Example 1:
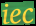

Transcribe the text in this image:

iec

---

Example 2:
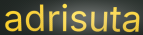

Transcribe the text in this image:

adrisuta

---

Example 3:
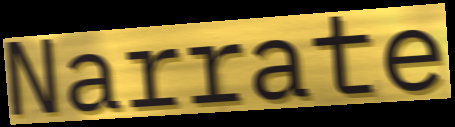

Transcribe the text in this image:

Narrate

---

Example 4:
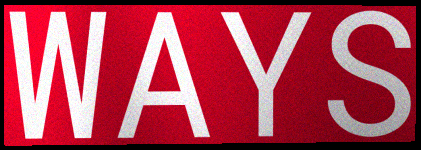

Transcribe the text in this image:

WAYS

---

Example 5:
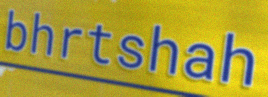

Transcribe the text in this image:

bhrtshah